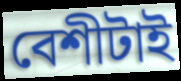
বেশীটাই